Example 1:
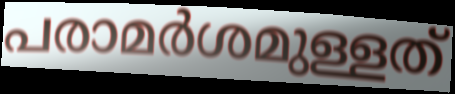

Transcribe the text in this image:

പരാമർശമുള്ളത്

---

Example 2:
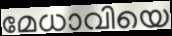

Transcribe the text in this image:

മേധാവിയെ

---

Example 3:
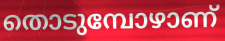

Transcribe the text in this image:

തൊടുമ്പോഴാണ്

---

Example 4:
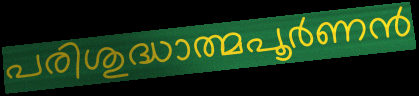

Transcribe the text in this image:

പരിശുദ്ധാത്മപൂർണൻ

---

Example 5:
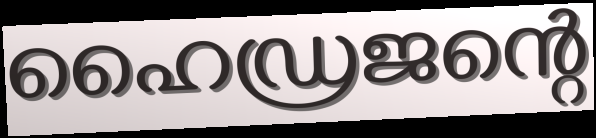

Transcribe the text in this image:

ഹൈഡ്രജന്റെ